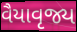
વૈયાવૃજ્ય